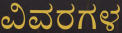
ವಿವರಗಳ